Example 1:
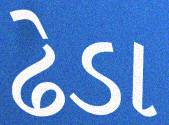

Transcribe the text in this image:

ઢેડા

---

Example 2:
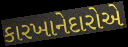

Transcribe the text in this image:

કારખાનેદારોએ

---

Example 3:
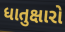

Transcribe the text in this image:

ધાતુક્ષારો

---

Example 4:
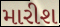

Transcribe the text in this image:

મારીશ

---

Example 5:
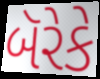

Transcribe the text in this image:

બૅરેકે